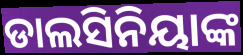
ଡାଲସିନିୟାଙ୍କ